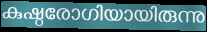
കുഷ്ഠരോഗിയായിരുന്നു